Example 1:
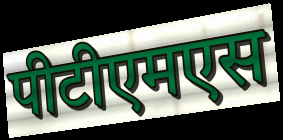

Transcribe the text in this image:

पीटीएमएस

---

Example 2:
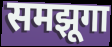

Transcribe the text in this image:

समझूगा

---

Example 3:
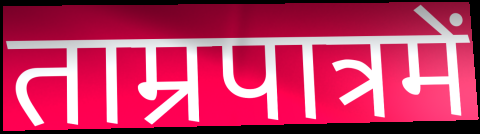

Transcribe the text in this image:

ताम्रपात्रमें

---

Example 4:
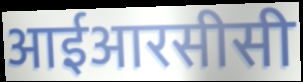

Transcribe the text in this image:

आईआरसीसी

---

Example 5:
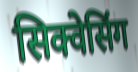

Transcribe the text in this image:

सिक्वेसिंग